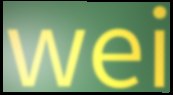
wei